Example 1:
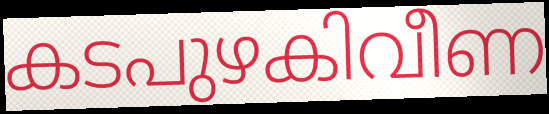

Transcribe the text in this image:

കടപുഴകിവീണ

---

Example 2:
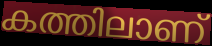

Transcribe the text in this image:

കത്തിലാണ്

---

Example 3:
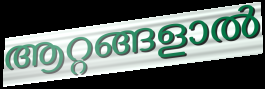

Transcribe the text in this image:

ആറ്റങ്ങളാൽ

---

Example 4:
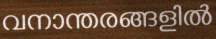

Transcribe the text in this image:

വനാന്തരങ്ങളിൽ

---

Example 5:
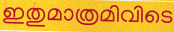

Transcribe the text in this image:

ഇതുമാത്രമിവിടെ